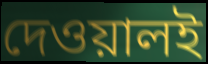
দেওয়ালই